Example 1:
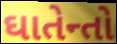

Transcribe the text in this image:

ઘાતેન્તો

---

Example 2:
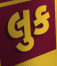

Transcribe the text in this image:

લુક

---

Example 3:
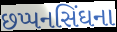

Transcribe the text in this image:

છપ્પનસિંઘના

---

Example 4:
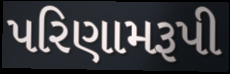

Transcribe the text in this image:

પરિણામરૂપી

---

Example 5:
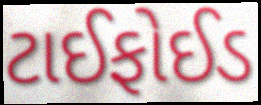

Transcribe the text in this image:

ટાઈફોઈડ